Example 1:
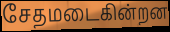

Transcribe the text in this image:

சேதமடைகின்றன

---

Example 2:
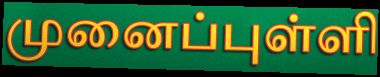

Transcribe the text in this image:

முனைப்புள்ளி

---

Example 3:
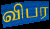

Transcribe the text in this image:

விபர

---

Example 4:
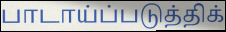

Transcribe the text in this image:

பாடாய்ப்படுத்திக்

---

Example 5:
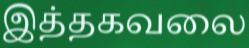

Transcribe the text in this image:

இத்தகவலை